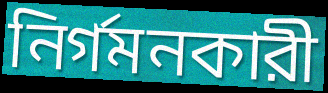
নির্গমনকারী